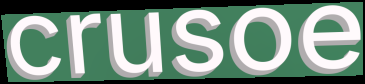
crusoe